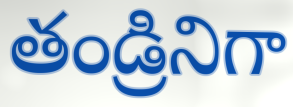
తండ్రినిగా